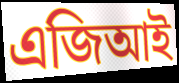
এজিআই